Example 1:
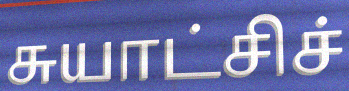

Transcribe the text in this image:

சுயாட்சிச்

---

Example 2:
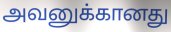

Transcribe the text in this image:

அவனுக்கானது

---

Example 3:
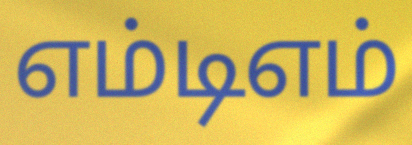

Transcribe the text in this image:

எம்டிஎம்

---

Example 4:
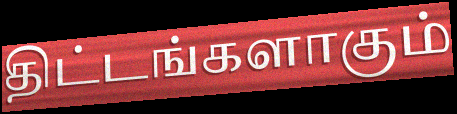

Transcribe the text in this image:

திட்டங்களாகும்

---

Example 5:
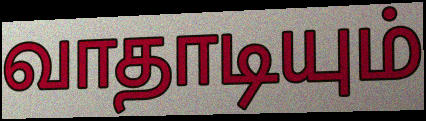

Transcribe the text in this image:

வாதாடியும்